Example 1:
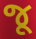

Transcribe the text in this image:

જૂ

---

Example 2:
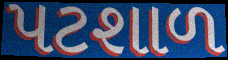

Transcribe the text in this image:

પટશાળ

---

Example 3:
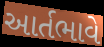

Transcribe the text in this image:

આર્તભાવે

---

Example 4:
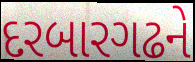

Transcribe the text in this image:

દરબારગઢને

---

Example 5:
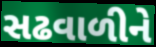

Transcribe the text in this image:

સઢવાળીને